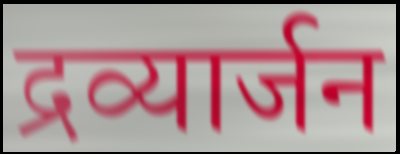
द्रव्यार्जन